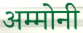
अम्मोनी